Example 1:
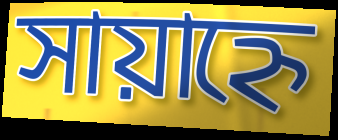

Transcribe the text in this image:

সায়াহ্নে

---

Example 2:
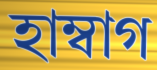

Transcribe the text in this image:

হাম্বাগ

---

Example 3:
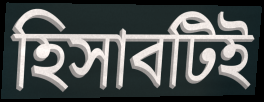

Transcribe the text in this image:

হিসাবটিই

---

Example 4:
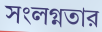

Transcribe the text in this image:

সংলগ্নতার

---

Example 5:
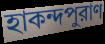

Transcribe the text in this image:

হাকন্দপুরাণ